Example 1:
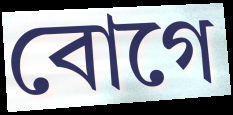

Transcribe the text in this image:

বোগে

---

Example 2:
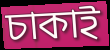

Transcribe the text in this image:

চাকাই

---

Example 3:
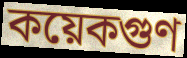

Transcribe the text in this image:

কয়েকগুণ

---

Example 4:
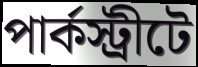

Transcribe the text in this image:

পার্কস্ট্রীটে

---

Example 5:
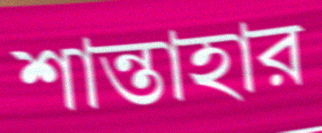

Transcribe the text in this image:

শান্তাহার